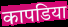
कापडिया